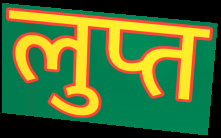
लुप्त